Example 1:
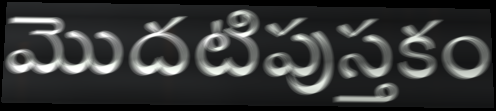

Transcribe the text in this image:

మొదటిపుస్తకం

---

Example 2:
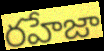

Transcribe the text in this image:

రహేజా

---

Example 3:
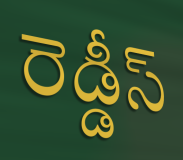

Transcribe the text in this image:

రెడ్డీస్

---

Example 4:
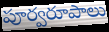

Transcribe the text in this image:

పూర్వరూపాలు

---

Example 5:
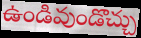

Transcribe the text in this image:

ఉండివుండొచ్చు